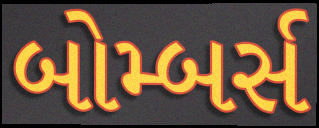
બોમ્બર્સ